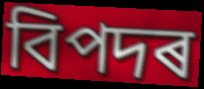
বিপদৰ